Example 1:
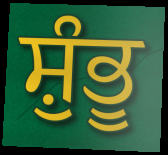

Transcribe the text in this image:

ਸ਼ੁੰਭੂ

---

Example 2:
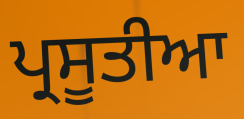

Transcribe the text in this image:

ਪ੍ਰਸੂਤੀਆ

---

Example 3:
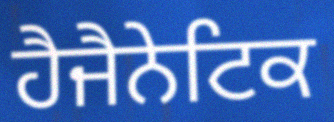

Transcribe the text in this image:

ਹੈਜੈਨੇਟਿਕ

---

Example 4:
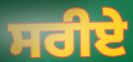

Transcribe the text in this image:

ਸਰੀਏ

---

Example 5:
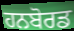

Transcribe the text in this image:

ਹਨਬੋਰਡ